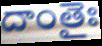
దాంతైః